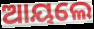
ଆୟଲେ